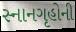
સ્નાનગૃહોની